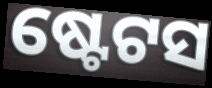
ଷ୍ଟେଟସ